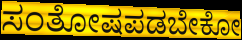
ಸಂತೋಷಪಡಬೇಕೋ